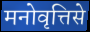
मनोवृत्तिसे